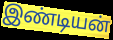
இண்டியன்